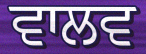
ਵਾਲਵ